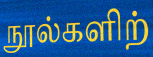
நூல்களிற்